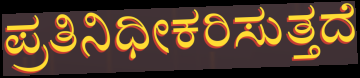
ಪ್ರತಿನಿಧೀಕರಿಸುತ್ತದೆ